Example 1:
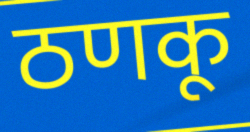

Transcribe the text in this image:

ठणकू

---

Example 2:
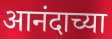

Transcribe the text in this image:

आनंदाच्या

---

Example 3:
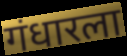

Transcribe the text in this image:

गंधारला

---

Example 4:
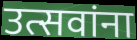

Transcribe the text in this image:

उत्सवांना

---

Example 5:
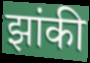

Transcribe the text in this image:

झांकी